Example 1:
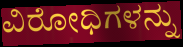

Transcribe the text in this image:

ವಿರೋಧಿಗಳನ್ನು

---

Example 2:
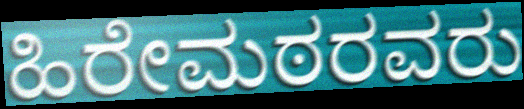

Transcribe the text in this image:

ಹಿರೇಮಠರವರು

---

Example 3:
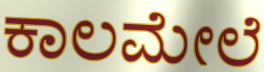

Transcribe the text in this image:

ಕಾಲಮೇಲೆ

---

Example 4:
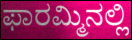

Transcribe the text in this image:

ಫಾರಮ್ಮಿನಲ್ಲಿ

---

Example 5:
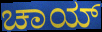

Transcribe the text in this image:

ಚಾಯ್